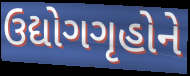
ઉદ્યોગગૃહોને